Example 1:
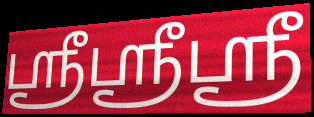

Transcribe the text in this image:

ஸ்ரீஸ்ரீஸ்ரீ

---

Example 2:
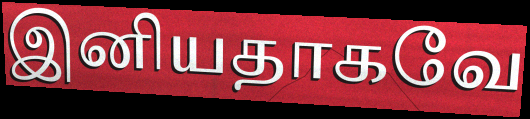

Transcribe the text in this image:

இனியதாகவே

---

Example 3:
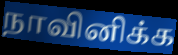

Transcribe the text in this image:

நாவினிக்க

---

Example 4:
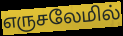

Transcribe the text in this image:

எருசலேமில்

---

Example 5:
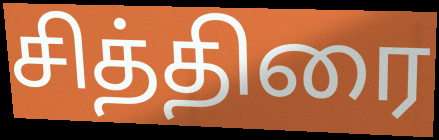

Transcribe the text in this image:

சித்திரை